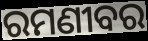
ରମଣୀବର